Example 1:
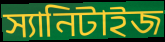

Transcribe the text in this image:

স্যানিটাইজ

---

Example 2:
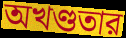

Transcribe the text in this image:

অখণ্ডতার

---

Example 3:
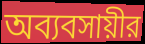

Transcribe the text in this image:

অব্যবসায়ীর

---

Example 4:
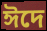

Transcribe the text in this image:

ঈদে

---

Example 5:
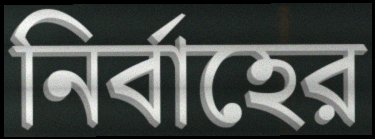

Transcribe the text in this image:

নির্বাহের